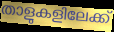
താളുകളിലേക്ക്